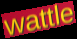
wattle